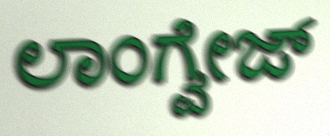
ಲಾಂಗ್ವೇಜ್